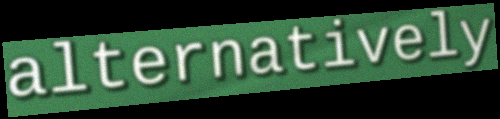
alternatively